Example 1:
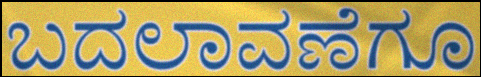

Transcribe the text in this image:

ಬದಲಾವಣೆಗೂ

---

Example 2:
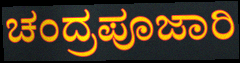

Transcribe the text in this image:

ಚಂದ್ರಪೂಜಾರಿ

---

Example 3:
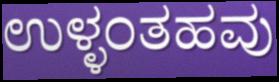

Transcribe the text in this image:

ಉಳ್ಳಂತಹವು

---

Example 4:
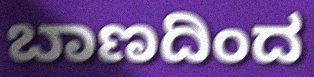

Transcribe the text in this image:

ಬಾಣದಿಂದ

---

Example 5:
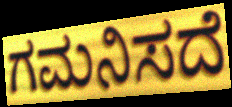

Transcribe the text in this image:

ಗಮನಿಸದೆ